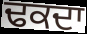
ਢਕਦਾ